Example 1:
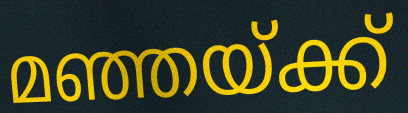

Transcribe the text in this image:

മഞ്ഞയ്ക്ക്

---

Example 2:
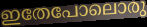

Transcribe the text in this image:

ഇതേപോലൊരു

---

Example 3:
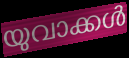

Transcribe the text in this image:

യുവാക്കൾ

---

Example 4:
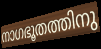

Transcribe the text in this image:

നാഗഭൂതത്തിനു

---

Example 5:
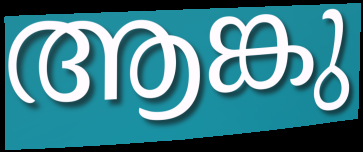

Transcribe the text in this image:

ആങ്കു